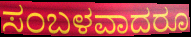
ಸಂಬಳವಾದರೂ